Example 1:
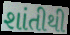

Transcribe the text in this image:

શાંતીથી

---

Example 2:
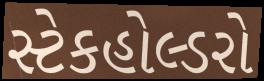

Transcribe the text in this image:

સ્ટેકહોલ્ડરો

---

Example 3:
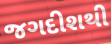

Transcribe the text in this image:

જગદીશથી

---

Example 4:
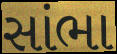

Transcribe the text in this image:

સાંભા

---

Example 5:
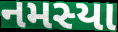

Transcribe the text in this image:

નમસ્યા